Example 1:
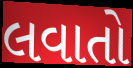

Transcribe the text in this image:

લવાતો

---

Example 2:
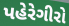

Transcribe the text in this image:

પહેરેગીરો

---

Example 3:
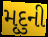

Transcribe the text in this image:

મૃદુની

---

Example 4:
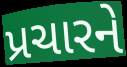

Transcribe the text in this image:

પ્રચારને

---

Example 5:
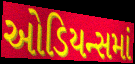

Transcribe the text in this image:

ઓડિયન્સમાં